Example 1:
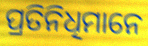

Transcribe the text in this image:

ପ୍ରତିନିଧିମାନେ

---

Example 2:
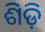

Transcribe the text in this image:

ଶିଡ଼ି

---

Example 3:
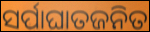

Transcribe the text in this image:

ସର୍ପାଘାତଜନିତ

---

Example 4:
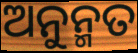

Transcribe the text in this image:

ଅନୁନ୍ମତ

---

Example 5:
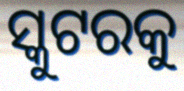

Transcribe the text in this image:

ସ୍କୁଟରକୁ